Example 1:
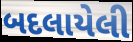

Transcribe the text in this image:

બદલાયેલી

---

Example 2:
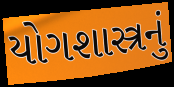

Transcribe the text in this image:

યોગશાસ્ત્રનું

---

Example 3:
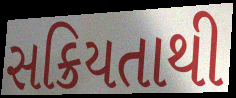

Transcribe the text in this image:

સક્રિયતાથી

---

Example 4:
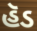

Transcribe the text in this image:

હૅડ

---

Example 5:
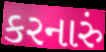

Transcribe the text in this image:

કરનારું